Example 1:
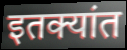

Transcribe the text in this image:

इतक्यांत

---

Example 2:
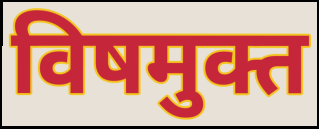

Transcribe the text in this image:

विषमुक्त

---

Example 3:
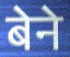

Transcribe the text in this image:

बेने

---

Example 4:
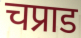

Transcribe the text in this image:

चप्राड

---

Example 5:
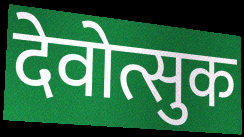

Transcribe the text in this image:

देवोत्सुक